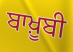
ਬਾਖ਼ੂਬੀ